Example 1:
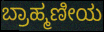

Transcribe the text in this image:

ಬ್ರಾಹ್ಮಣೀಯ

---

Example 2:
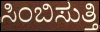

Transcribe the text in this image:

ಸಿಂಬಿಸುತ್ತಿ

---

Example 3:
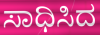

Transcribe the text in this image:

ಸಾಧಿಸಿದ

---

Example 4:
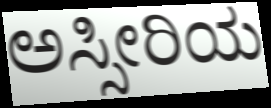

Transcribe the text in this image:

ಅಸ್ಸೀರಿಯ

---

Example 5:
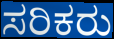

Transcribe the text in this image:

ಸರಿಕರು